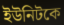
ইউনিটকে